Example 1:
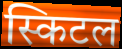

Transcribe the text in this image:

स्किटल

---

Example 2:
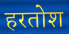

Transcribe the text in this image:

हरतोश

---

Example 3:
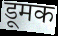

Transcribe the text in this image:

डूमक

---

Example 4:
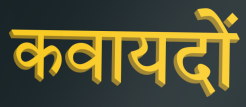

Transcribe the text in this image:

कवायदों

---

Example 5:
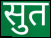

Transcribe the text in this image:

सुत